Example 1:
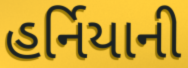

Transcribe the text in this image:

હર્નિયાની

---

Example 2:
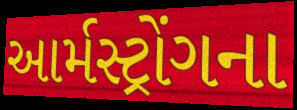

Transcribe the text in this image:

આર્મસ્ટ્રોંગના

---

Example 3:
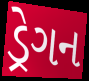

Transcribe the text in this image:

ડ્રેગન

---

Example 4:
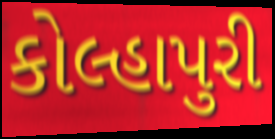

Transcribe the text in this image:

કોલ્હાપુરી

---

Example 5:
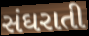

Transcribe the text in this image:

સંઘરાતી